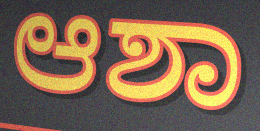
ಆಶಾ